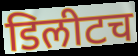
डिलीटच